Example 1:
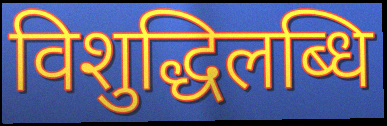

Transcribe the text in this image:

विशुद्धिलब्धि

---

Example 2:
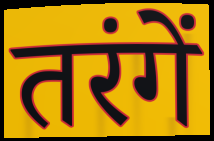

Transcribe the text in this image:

तरंगें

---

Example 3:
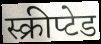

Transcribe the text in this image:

स्क्रीप्टेड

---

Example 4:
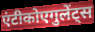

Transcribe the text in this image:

एंटीकोएगुलेंट्स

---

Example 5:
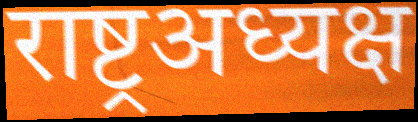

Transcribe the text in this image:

राष्ट्रअध्यक्ष